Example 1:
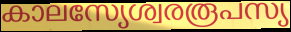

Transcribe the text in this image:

കാലസ്യേശ്വരരൂപസ്യ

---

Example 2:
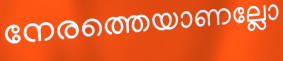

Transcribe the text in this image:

നേരത്തെയാണല്ലോ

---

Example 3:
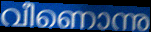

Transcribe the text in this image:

വീണൊന്നു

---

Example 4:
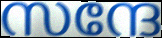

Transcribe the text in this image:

സന്ദേ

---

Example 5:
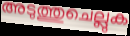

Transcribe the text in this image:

അടുത്തുചെല്ലുക